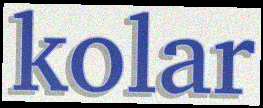
kolar